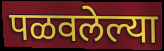
पळवलेल्या